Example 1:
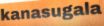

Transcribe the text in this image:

kanasugala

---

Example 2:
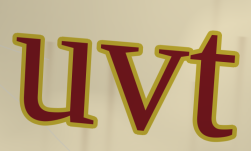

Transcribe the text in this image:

uvt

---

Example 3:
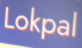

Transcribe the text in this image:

Lokpal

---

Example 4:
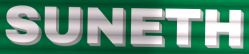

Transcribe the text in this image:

SUNETH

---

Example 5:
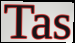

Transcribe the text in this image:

Tas